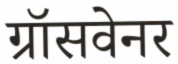
ग्रॉसवेनर